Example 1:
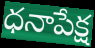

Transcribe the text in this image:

ధనాపేక్ష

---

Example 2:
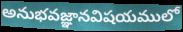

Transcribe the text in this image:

అనుభవజ్ఞానవిషయములో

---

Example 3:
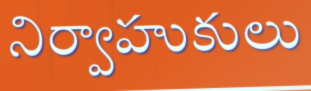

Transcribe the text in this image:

నిర్వాహుకులు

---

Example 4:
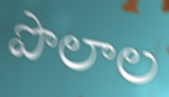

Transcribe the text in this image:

పొలాల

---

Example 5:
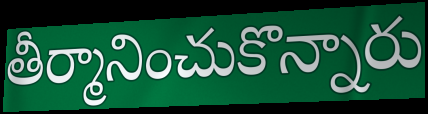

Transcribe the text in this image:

తీర్మానించుకొన్నారు